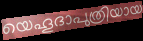
യെഹൂദാപുത്രിയായ